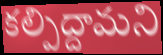
కల్పిద్దామని